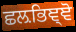
ਛਲ਼ਭਿਞ੍ਞੋ